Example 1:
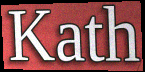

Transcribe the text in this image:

Kath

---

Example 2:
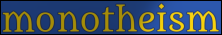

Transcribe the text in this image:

monotheism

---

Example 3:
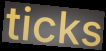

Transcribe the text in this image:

ticks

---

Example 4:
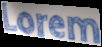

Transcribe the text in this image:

Lorem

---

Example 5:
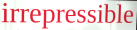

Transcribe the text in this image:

irrepressible